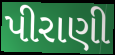
પીરાણી